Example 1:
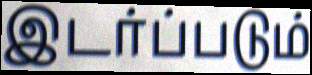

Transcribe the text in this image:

இடர்ப்படும்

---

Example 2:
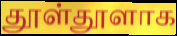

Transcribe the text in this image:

தூள்தூளாக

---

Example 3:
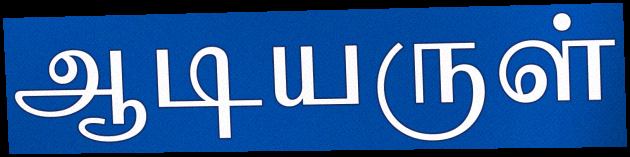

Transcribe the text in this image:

ஆடியருள்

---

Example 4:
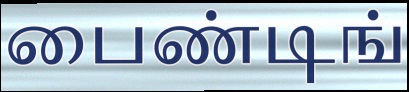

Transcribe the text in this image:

பைண்டிங்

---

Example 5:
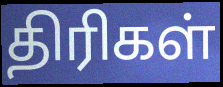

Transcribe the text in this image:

திரிகள்